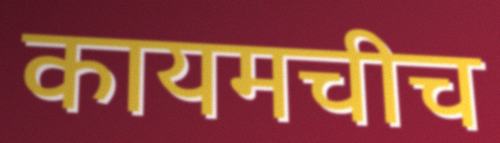
कायमचीच